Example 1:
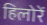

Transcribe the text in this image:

हिलोरें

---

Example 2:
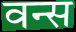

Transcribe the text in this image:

वन्स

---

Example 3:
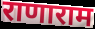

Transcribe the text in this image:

राणाराम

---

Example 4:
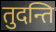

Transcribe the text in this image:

तुदन्ति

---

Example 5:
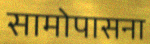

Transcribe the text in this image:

सामोपासना